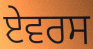
ਏਵਰਸ